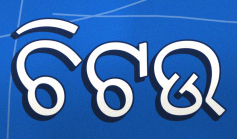
ଚିଟଉ